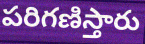
పరిగణిస్తారు